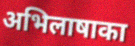
अभिलाषाका